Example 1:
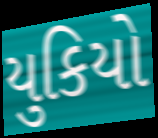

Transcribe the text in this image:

યુકિયો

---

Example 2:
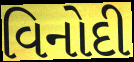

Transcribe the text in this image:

વિનોદી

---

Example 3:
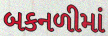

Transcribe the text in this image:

બકનળીમાં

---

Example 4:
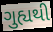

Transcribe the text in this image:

ગુહ્યથી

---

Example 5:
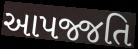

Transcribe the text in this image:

આપજ્જતિ